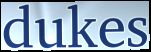
dukes